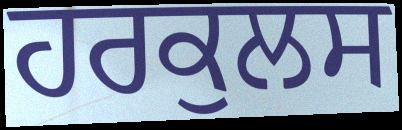
ਹਰਕੁਲਸ